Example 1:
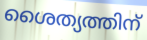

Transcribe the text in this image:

ശൈത്യത്തിന്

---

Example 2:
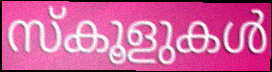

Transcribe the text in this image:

സ്കൂളുകൾ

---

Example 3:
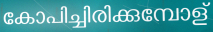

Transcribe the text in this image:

കോപിച്ചിരിക്കുമ്പോള്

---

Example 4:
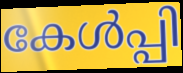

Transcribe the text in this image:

കേൾപ്പി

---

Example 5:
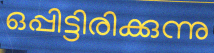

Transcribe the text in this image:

ഒപ്പിട്ടിരിക്കുന്നു